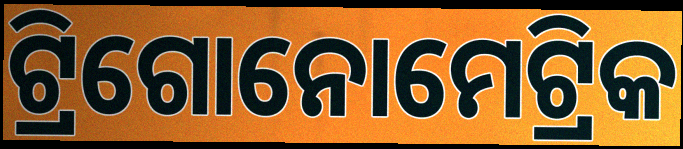
ଟ୍ରିଗୋନୋମେଟ୍ରିକ